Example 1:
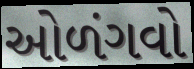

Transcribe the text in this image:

ઓળંગવો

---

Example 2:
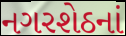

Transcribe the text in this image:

નગરશેઠનાં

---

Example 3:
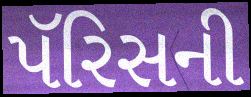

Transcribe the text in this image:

પૅરિસની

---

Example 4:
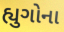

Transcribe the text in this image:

હ્યુગોના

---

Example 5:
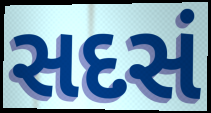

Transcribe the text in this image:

સદસં